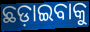
ଛଡ଼ାଇବାକୁ